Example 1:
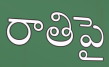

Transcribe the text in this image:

రాతిపై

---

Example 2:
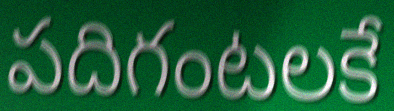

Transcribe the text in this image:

పదిగంటలకే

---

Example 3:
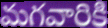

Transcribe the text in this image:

మగవారికి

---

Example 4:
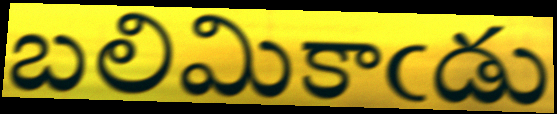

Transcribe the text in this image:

బలిమికాఁడు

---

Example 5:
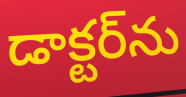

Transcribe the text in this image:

డాక్టర్‌ను